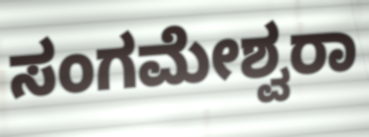
ಸಂಗಮೇಶ್ವರಾ